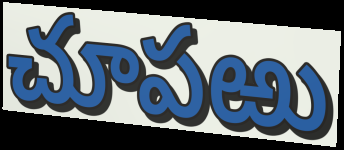
చూపఱు